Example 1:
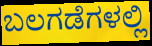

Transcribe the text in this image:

ಬಲಗಡೆಗಳಲ್ಲಿ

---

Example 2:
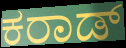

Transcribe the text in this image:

ಕರಾಡ್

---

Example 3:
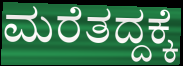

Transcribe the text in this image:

ಮರೆತದ್ದಕ್ಕೆ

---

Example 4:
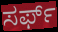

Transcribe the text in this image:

ಸರ್ಫ್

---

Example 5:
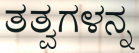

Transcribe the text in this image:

ತತ್ವಗಳನ್ನ